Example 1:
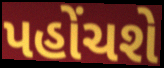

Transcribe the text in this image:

પહોંચશે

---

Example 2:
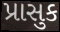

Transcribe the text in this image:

પ્રાસુક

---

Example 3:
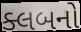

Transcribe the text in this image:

ક્લબનો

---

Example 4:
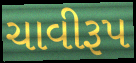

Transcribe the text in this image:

ચાવીરૂપ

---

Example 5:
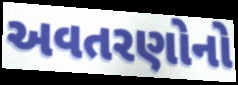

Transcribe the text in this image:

અવતરણોનો